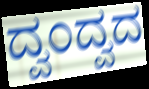
ದ್ವಂದ್ವದ